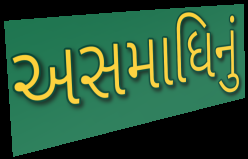
અસમાધિનું